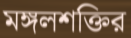
মঙ্গলশক্তির